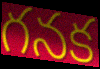
గనక